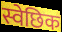
स्वेछिक